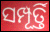
ସମ୍ପୂର୍ତ୍ତି